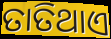
ତାତିଥାଏ